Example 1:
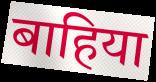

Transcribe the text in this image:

बाहिया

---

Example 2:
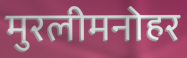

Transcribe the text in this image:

मुरलीमनोहर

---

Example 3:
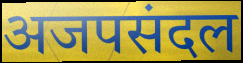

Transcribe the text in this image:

अजपसंदल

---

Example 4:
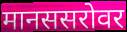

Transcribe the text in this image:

मानससरोवर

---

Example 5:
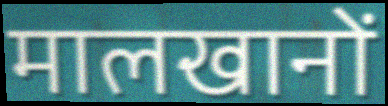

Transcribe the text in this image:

मालखानों